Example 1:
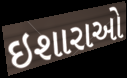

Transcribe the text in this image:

ઇશારાઓ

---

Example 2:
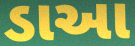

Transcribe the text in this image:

ડાઆ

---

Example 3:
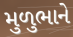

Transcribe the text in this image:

મુળુભાને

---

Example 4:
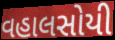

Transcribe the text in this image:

વહાલસોયી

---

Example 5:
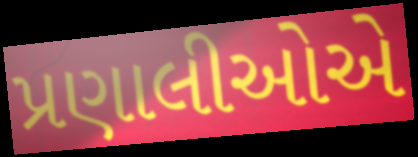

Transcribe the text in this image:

પ્રણાલીઓએ